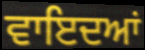
ਵਾਇਦਆਂ